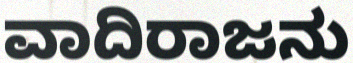
ವಾದಿರಾಜನು